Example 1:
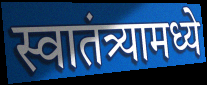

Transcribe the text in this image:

स्वातंत्र्यामध्ये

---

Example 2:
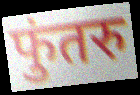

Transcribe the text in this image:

फुंतरु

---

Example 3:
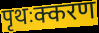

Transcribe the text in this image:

पृथःक्करण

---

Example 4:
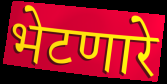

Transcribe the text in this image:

भेटणारे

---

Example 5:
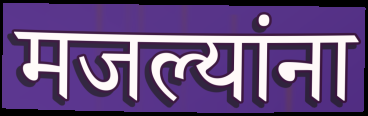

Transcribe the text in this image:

मजल्यांना